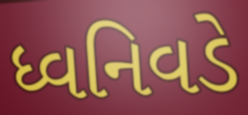
ધ્વનિવડે